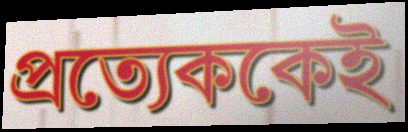
প্রত্যেককেই